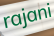
rajani